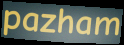
pazham